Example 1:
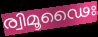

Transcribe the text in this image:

ര്വിമൂഢൈഃ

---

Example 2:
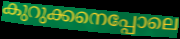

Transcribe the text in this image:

കുറുക്കനെപ്പോലെ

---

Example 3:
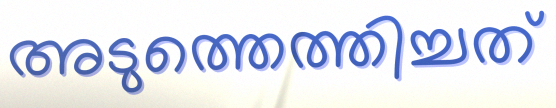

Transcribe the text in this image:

അടുത്തെത്തിച്ചത്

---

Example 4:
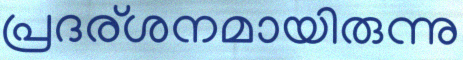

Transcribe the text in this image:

പ്രദര്ശനമായിരുന്നു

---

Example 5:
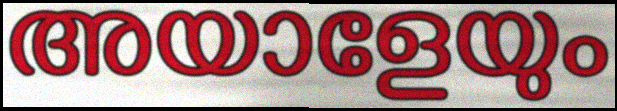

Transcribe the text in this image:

അയാളേയും